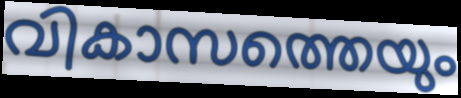
വികാസത്തെയും